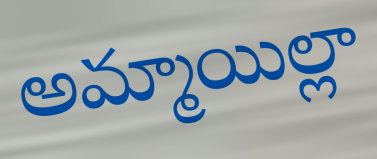
అమ్మాయిల్లా